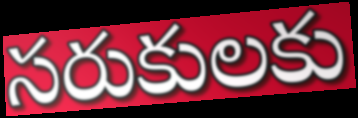
సరుకులకు